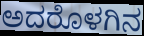
ಅದರೊಳಗಿನ